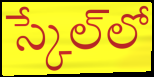
స్కేల్‌లో